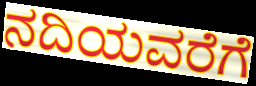
ನದಿಯವರೆಗೆ